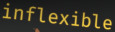
inflexible